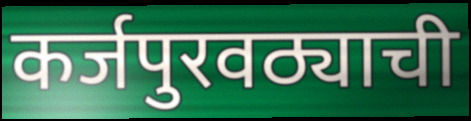
कर्जपुरवठ्याची